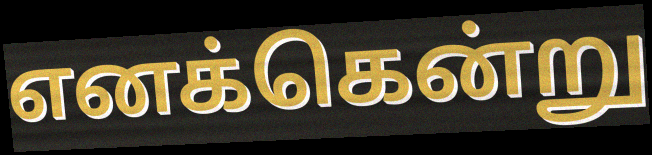
எனக்கென்று